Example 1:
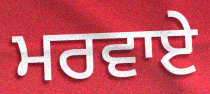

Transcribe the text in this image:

ਮਰਵਾਏ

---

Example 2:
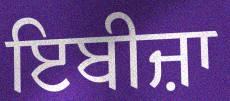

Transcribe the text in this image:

ਇਬੀਜ਼ਾ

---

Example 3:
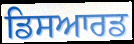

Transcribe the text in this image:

ਡਿਸਆਰਡ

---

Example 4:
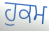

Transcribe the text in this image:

ਹੁਕਮ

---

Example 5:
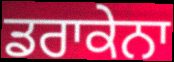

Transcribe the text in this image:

ਡਰਾਕੇਨਾ